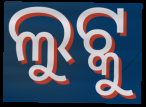
ଲୁଟ୍କୁ